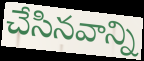
చేసినవాన్ని